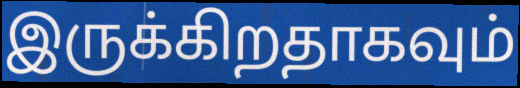
இருக்கிறதாகவும்